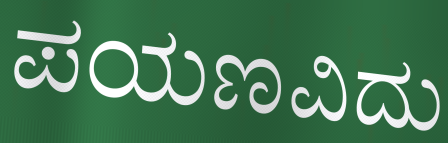
ಪಯಣವಿದು